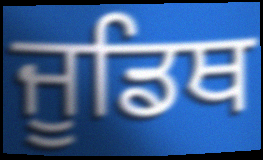
ਜੂਡਿਥ